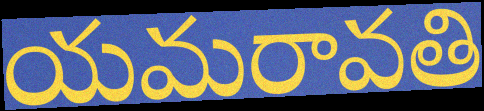
యమరావతి